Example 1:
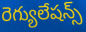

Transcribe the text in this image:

రెగ్యులేషన్స్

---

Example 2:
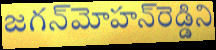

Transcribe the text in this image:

జగన్‌మోహన్‌రెడ్డిని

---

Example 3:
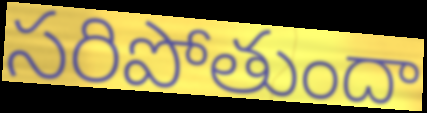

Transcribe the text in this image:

సరిపోతుందా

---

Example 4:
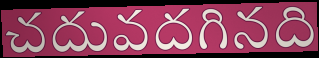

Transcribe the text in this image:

చదువదగినది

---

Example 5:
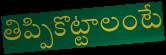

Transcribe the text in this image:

తిప్పికొట్టాలంటే